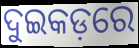
ଦୁଇକଡ଼ରେ